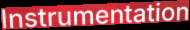
Instrumentation